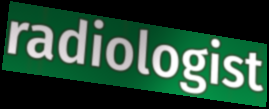
radiologist